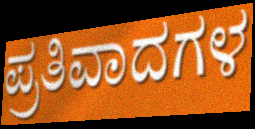
ಪ್ರತಿವಾದಗಳ